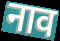
नाव